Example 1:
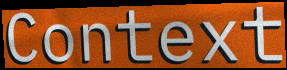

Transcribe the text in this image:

Context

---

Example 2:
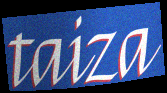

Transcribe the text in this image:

taiza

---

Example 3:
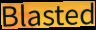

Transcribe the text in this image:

Blasted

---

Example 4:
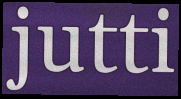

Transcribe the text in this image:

jutti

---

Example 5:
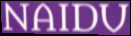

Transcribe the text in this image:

NAIDU